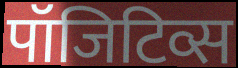
पॉजिटिव्स